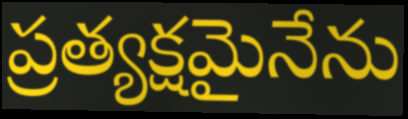
ప్రత్యక్షమైనేను